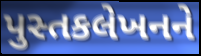
પુસ્તકલેખનને